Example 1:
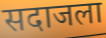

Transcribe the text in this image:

सदाजला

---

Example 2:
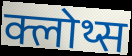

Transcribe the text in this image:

क्लोथ्स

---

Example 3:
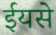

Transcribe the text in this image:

ईयसे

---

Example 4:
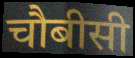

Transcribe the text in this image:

चौबीसी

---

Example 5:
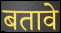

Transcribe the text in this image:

बतावे